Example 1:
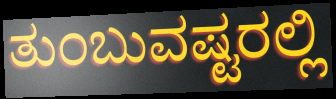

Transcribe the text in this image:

ತುಂಬುವಷ್ಟರಲ್ಲಿ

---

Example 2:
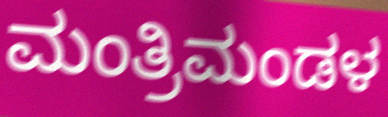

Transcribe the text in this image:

ಮಂತ್ರಿಮಂಡಳ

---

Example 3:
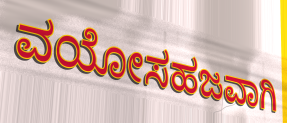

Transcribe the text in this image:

ವಯೋಸಹಜವಾಗಿ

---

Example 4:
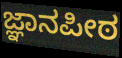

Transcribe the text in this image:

ಜ್ಞಾನಪೀಠ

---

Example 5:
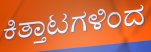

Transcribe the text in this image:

ಕಿತ್ತಾಟಗಳಿಂದ